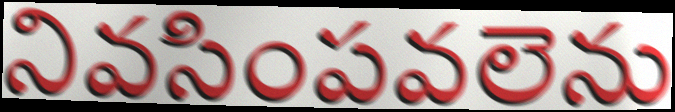
నివసింపవలెను